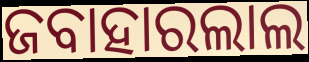
ଜବାହାରଲାଲ